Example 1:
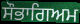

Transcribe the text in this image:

ਸੌਭਾਗਿਅਮ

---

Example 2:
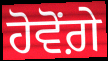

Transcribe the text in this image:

ਹੋਵੋਂਗ਼ੇ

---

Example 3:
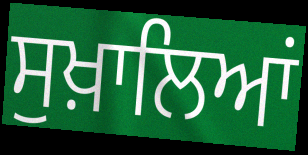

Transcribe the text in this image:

ਸੁਖ਼ਾਲਿਆਂ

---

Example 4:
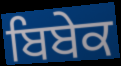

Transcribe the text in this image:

ਬਿਬੇਕ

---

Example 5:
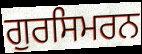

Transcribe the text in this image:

ਗੁਰਸਿਮਰਨ